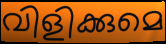
വിളിക്കുമെ